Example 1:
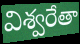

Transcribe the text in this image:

విశ్వరేతా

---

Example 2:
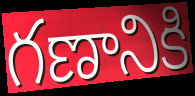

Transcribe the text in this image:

గణానికి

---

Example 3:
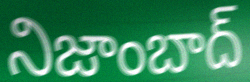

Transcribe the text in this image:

నిజాంబాద్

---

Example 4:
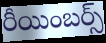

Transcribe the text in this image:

రీయింబర్స్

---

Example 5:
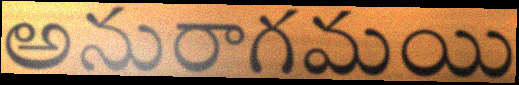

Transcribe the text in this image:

అనురాగమయి